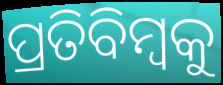
ପ୍ରତିବିମ୍ୱକୁ